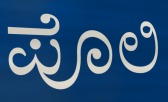
ಪೊಲಿ